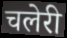
चलेरी